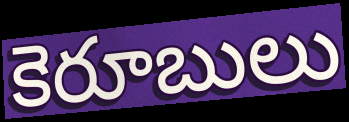
కెరూబులు